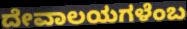
ದೇವಾಲಯಗಳೆಂಬ